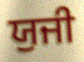
ਯੁਜੀ